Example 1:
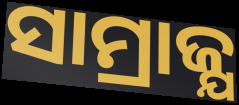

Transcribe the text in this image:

ସାମ୍ରାଜ୍ଯ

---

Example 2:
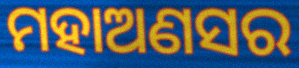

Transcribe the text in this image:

ମହାଅଣସର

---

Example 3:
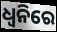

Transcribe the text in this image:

ଧ୍ଵନିରେ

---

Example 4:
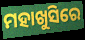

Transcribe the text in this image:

ମହାଖୁସିରେ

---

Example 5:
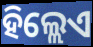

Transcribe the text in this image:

ହିଲ୍ଲେଏ